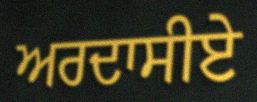
ਅਰਦਾਸੀਏ